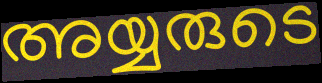
അയ്യരുടെ